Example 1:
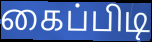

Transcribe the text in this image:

கைப்பிடி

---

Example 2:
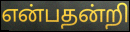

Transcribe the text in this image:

என்பதன்றி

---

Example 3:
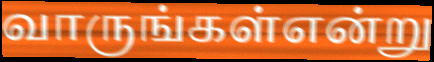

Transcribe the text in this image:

வாருங்கள்என்று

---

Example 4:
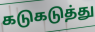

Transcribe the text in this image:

கடுகடுத்து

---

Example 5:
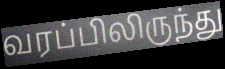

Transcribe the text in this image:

வரப்பிலிருந்து